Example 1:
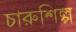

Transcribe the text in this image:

চারুশিল্প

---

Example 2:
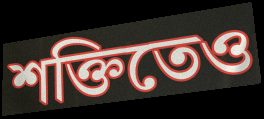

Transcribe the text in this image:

শক্তিতেও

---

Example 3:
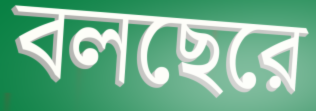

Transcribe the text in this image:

বলছেরে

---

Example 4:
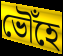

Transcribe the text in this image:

ভৌঁহে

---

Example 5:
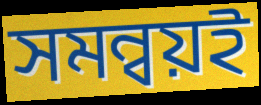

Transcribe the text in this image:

সমন্বয়ই